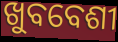
ଖୁବବେଶୀ